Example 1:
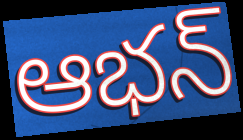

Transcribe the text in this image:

ఆభన్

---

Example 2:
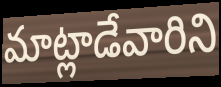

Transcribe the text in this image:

మాట్లాడేవారిని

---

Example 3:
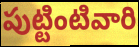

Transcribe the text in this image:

పుట్టింటివారి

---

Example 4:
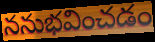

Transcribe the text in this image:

ననుభవించడం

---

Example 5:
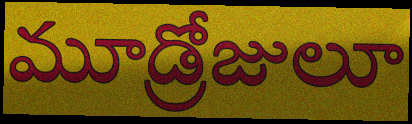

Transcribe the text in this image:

మూడ్రోజులూ